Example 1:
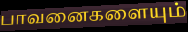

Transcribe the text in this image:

பாவனைகளையும்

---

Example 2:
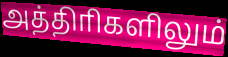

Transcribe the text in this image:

அத்திரிகளிலும்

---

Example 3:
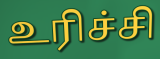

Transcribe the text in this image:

உரிச்சி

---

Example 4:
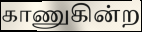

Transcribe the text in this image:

காணுகின்ற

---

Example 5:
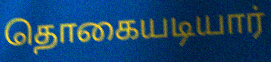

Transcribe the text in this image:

தொகையடியார்